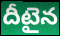
దీటైన